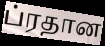
ப்ரதான